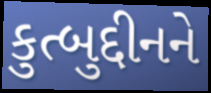
કુત્બુદ્દીનને